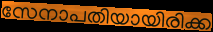
സേനാപതിയായിരിക്ക